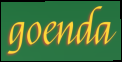
goenda